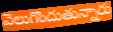
వెలుగొందుతున్నారు